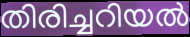
തിരിച്ചറിയൽ